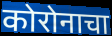
कोरोनाचा